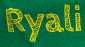
Ryali